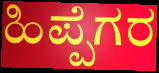
ಹಿಪ್ಪೆಗರ